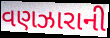
વણઝારાની